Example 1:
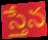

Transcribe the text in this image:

స్తేన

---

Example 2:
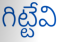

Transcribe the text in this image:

గిట్టేవి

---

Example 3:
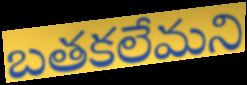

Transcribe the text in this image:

బతకలేమని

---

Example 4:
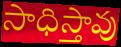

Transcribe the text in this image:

సాధిస్తావు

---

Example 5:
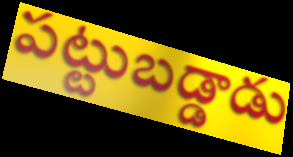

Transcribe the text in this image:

పట్టుబడ్డాడు